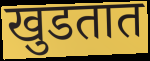
खुडतात